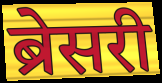
ब्रेसरी